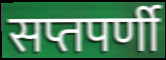
सप्तपर्णी